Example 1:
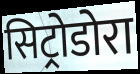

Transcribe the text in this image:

सिट्रोडोरा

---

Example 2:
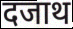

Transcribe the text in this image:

दजाथ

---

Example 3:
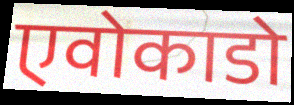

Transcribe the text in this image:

एवोकाडो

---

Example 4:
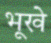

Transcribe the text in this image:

भूखे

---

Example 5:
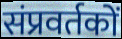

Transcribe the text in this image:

संप्रवर्तकों